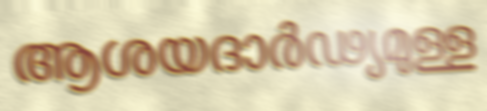
ആശയദാർഢ്യമുള്ള